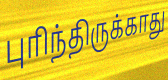
புரிந்திருக்காது